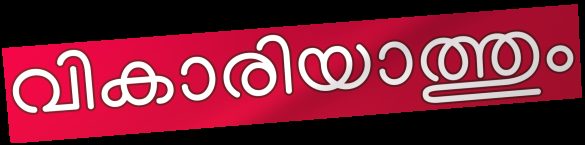
വികാരിയാത്തും